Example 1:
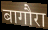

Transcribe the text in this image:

बागौरा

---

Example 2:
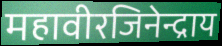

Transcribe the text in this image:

महावीरजिनेन्द्राय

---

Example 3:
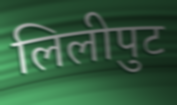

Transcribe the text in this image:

लिलीपुट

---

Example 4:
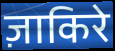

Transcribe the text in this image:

ज़ाकिरे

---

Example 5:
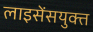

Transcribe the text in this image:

लाइसेंसयुक्त